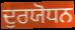
ਦੁਰਯੋਧਨ